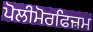
ਪੋਲੀਮੋਰਫਿਜ਼ਮ